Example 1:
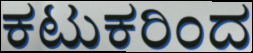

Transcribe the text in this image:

ಕಟುಕರಿಂದ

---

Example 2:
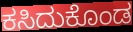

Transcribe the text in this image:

ಕಸಿದುಕೊಂಡ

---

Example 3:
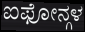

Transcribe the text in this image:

ಐಫೋನ್ಗಳ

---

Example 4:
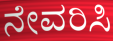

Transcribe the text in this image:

ನೇವರಿಸಿ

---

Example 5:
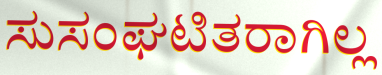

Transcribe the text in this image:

ಸುಸಂಘಟಿತರಾಗಿಲ್ಲ